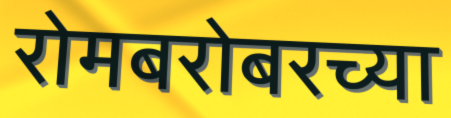
रोमबरोबरच्या